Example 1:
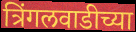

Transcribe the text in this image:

त्रिंगलवाडीच्या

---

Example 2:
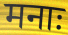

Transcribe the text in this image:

मनाः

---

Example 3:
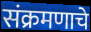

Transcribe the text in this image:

संक्रमणाचे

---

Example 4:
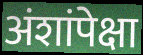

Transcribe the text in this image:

अंशांपेक्षा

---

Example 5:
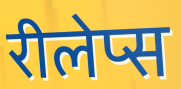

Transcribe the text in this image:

रीलेप्स